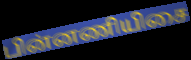
பின்னணியிசை